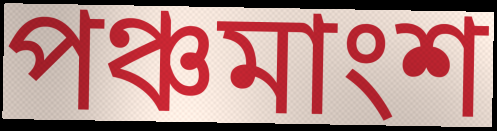
পঞ্চমাংশ